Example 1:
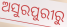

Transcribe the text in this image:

ଅସୁରପୁରୀରୁ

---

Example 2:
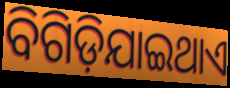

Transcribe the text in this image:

ବିଗିଡ଼ିଯାଇଥାଏ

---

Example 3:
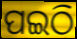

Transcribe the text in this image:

ପଇଠି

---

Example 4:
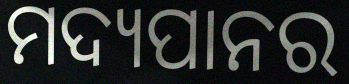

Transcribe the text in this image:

ମଦ୍ୟପାନର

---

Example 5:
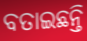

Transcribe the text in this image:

ବତାଇଛନ୍ତି